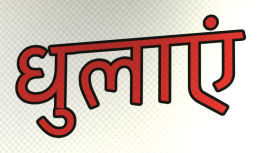
धुलाएं